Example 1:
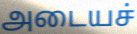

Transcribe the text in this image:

அடையச்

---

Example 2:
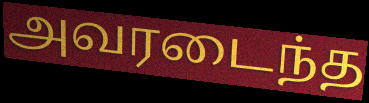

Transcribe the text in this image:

அவரடைந்த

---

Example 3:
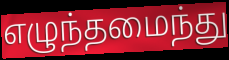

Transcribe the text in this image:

எழுந்தமைந்து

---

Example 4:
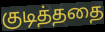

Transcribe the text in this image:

குடித்ததை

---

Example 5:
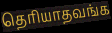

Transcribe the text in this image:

தெரியாதவங்க